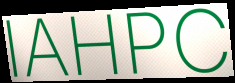
IAHPC